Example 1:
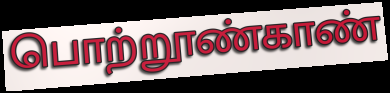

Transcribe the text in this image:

பொற்றூண்காண்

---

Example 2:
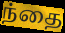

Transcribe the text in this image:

ந்தை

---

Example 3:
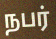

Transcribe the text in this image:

நபர்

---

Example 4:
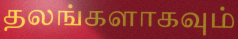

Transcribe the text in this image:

தலங்களாகவும்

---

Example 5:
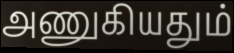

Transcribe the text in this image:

அணுகியதும்